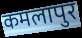
कमलापुर